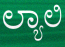
ಲ್ಯಾಲಿ